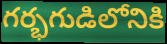
గర్భగుడిలోనికి